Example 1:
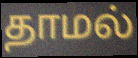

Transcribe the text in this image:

தாமல்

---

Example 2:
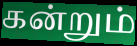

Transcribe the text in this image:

கன்றும்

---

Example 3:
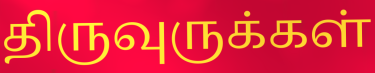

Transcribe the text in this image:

திருவுருக்கள்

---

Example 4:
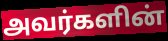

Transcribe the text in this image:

அவர்களின்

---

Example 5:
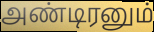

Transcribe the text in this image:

அண்டிரனும்